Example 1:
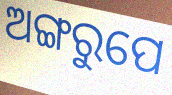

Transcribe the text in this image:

ଅଙ୍ଗରୁପେ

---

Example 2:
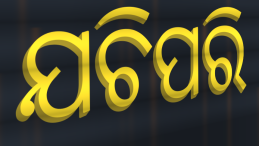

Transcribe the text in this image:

ଯଚିପରି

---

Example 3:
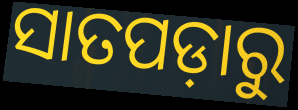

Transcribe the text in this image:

ସାତପଡ଼ାରୁ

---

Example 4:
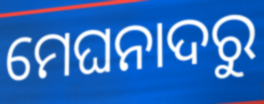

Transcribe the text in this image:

ମେଘନାଦରୁ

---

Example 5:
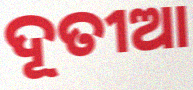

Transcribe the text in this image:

ଦୂତୀଆ